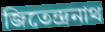
জিতেন্দ্রনাথ